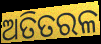
ଅତିତରଳ